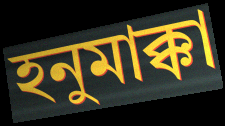
হনুমাক্কা